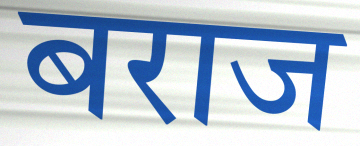
बराज